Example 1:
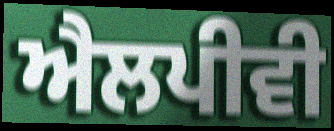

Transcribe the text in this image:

ਐਲਪੀਵੀ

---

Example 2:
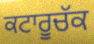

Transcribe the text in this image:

ਕਟਾਰੂਚੱਕ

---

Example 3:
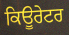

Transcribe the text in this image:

ਕਿਊਰੇਟਰ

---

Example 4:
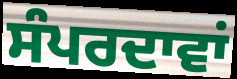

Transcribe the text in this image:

ਸੰਪਰਦਾਵਾਂ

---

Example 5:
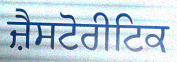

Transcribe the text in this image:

ਜ਼ੈਸਟੋਰੀਟਿਕ